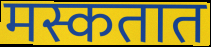
मस्कतात